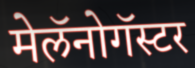
मेलॅनोगॅस्टर